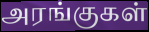
அரங்குகள்